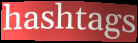
hashtags